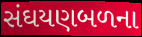
સંઘયણબળના